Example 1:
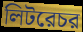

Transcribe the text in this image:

লিটরেচর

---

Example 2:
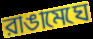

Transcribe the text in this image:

রাঙামেঘে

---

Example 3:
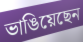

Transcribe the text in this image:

ভাঙিয়েছেন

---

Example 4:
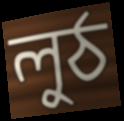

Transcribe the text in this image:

লুঠ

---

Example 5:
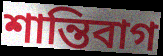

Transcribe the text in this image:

শান্তিবাগ